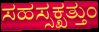
ಸಹಸ್ಸಕ್ಖತ್ತುಂ